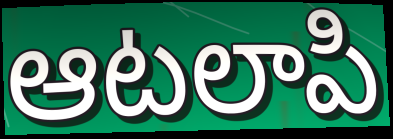
ఆటలాపి